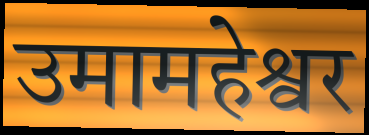
उमामहेश्वर